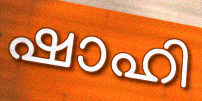
ഷാഹി